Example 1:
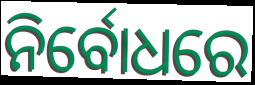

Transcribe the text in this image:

ନିର୍ବୋଧରେ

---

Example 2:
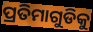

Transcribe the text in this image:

ପ୍ରତିମାଗୁଡିକୁ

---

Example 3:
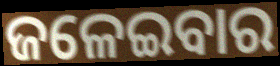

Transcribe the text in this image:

ଜଳେଇବାର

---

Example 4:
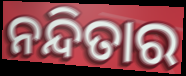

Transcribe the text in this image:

ନନ୍ଦିତାର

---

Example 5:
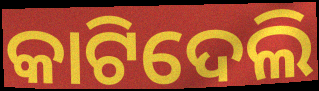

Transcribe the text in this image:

କାଟିଦେଲି